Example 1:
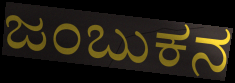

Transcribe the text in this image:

ಜಂಬುಕನ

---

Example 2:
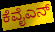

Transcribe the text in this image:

ಕೆವೈಎನ್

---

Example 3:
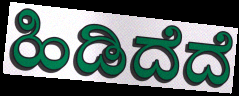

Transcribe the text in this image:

ಹಿಡಿದೆದೆ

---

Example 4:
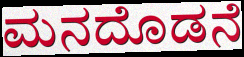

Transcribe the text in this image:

ಮನದೊಡನೆ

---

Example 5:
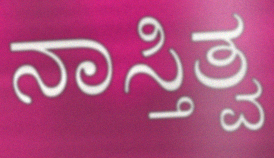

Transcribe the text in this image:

ನಾಸ್ತಿತ್ವ